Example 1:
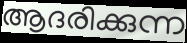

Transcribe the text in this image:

ആദരിക്കുന്ന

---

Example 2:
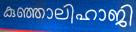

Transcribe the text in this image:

കുഞ്ഞാലിഹാജി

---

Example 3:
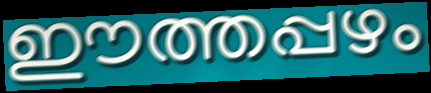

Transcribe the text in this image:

ഈത്തപ്പഴം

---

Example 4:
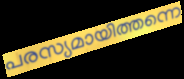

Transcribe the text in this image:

പരസ്യമായിത്തന്നെ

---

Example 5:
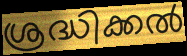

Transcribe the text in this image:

ശ്രദ്ധിക്കൽ